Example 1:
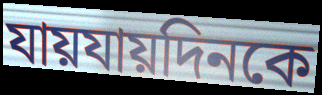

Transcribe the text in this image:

যায়যায়দিনকে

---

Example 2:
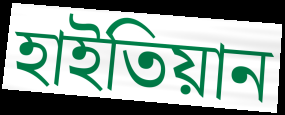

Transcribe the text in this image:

হাইতিয়ান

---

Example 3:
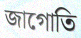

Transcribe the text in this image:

জাগোতি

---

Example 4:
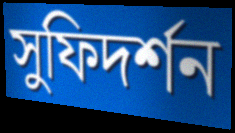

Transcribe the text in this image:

সুফিদর্শন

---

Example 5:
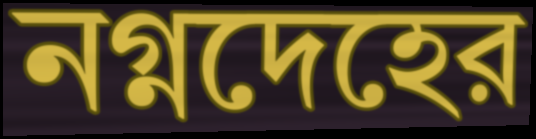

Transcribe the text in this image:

নগ্নদেহের